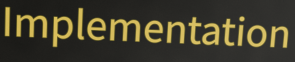
Implementation